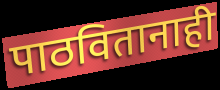
पाठवितानाही